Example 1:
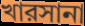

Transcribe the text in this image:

খারসানা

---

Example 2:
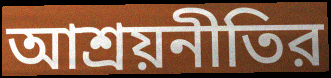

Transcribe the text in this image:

আশ্রয়নীতির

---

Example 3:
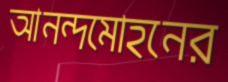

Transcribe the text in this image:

আনন্দমোহনের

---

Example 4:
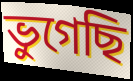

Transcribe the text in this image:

ভুগেছি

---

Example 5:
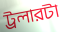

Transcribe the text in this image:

ট্রলারটা